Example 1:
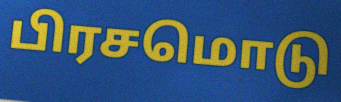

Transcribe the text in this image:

பிரசமொடு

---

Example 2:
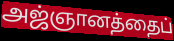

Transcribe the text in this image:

அஜ்ஞானத்தைப்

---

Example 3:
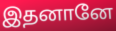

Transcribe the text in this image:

இதனானே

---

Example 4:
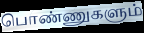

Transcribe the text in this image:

பொண்ணுகளும்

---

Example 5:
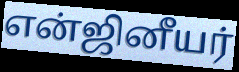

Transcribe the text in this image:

என்ஜினீயர்